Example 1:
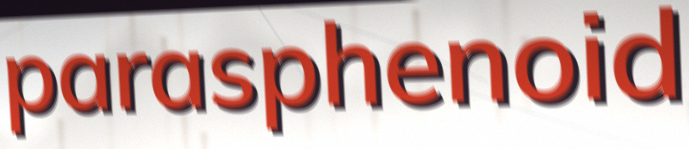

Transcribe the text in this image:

parasphenoid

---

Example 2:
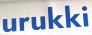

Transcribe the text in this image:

urukki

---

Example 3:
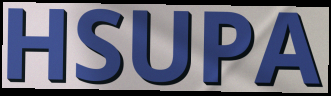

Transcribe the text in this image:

HSUPA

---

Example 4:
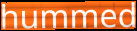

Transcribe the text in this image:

hummed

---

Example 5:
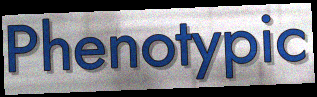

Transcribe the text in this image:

Phenotypic